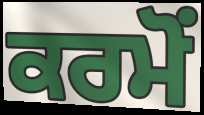
ਕਰਮੋਂ